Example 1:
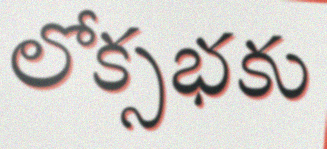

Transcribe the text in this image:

లోక్సభకు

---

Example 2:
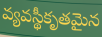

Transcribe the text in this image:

వ్యవస్థీకృతమైన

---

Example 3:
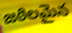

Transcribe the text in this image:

జఠిలమైన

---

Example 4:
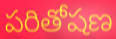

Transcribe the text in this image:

పరితోషణ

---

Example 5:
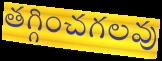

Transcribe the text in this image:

తగ్గించగలవు